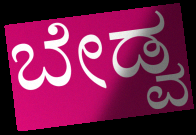
ಬೇಡ್ವ